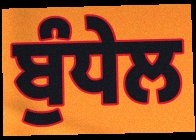
ਬੁੰਧੇਲ